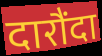
दारौंदा